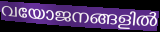
വയോജനങ്ങളിൽ